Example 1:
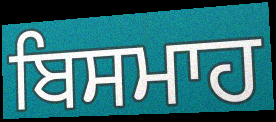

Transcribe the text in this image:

ਬਿਸਮਾਹ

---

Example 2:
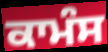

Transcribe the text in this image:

ਕਾਮੰਸ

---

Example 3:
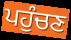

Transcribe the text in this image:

ਪਹੁੰਚਣ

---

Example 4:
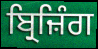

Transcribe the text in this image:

ਬ੍ਰਿਜ਼ਿੰਗ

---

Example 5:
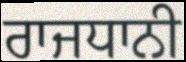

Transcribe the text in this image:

ਰਾਜਧਾਨੀ